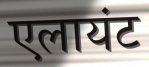
एलायंट